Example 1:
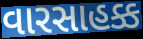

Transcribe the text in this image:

વારસાહક્ક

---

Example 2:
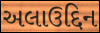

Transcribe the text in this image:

અલાઉદ્દિન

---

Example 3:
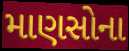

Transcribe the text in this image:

માણસોના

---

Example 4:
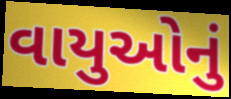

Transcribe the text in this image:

વાયુઓનું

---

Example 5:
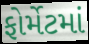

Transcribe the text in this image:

ફોર્મેટમાં